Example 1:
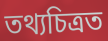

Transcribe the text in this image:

তথ্যচিত্ৰত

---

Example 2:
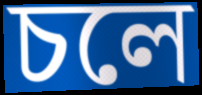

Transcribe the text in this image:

চলে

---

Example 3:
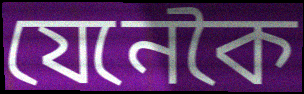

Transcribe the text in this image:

যেনেকৈ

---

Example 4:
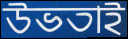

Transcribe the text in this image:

উভতাই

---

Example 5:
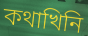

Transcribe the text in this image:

কথাখিনি